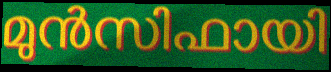
മുൻസിഫായി